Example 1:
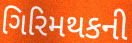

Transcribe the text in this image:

ગિરિમથકની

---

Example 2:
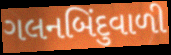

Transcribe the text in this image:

ગલનબિંદુવાળી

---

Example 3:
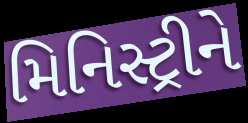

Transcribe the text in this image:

મિનિસ્ટ્રીને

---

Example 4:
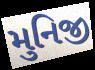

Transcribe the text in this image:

મુનિજી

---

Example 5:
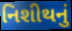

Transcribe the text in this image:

નિશીથનું